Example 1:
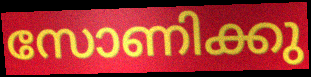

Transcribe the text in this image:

സോണിക്കു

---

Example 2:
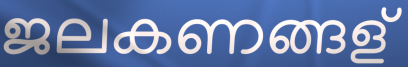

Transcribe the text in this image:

ജലകണങ്ങള്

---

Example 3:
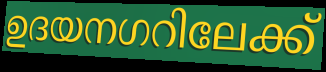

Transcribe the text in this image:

ഉദയനഗറിലേക്ക്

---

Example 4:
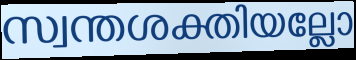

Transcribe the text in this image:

സ്വന്തശക്തിയല്ലോ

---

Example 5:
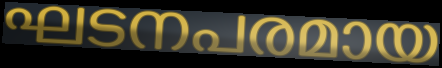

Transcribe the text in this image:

ഘടനപരമായ